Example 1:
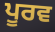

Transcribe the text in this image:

ਪੂਰਵ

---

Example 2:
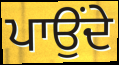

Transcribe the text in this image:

ਪਾਉਂਦੇ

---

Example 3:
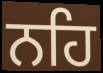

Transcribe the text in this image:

ਨਹਿ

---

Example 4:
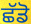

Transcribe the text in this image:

ਛੱਡੋ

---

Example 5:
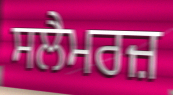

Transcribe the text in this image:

ਸਲੈਮਰਜ਼